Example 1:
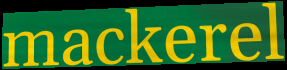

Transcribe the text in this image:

mackerel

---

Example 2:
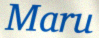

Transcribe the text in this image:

Maru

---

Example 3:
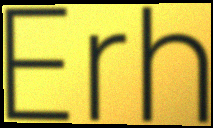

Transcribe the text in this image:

Erh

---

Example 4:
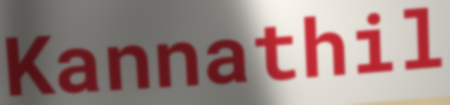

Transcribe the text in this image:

Kannathil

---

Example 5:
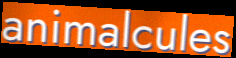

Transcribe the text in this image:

animalcules